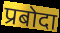
प्रबोदा